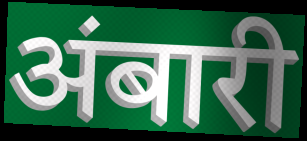
अंबारी